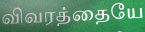
விவரத்தையே